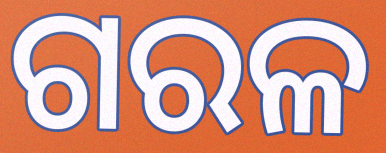
ଗରଳ